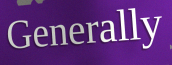
Generally